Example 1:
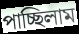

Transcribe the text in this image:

পাচ্ছিলাম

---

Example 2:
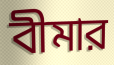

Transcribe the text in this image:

বীমার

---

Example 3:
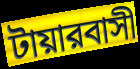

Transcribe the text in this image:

টায়ারবাসী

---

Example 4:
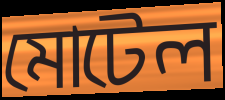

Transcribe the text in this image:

মোটেল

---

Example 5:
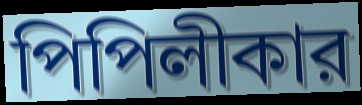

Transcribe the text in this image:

পিপিলীকার